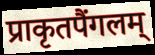
प्राकृतपैंगलम्